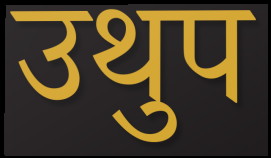
उथुप